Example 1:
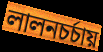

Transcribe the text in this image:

লালনচর্চায়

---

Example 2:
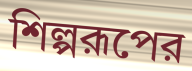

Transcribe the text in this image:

শিল্পরূপের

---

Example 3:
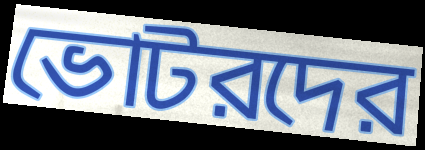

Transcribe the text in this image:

ভোটরদের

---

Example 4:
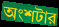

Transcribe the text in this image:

অংশটার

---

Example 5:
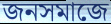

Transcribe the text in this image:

জনসমাজে